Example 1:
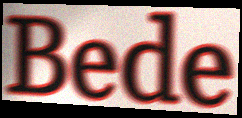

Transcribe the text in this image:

Bede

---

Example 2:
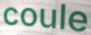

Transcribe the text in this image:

coule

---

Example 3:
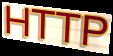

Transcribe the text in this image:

HTTP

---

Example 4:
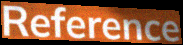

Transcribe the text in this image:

Reference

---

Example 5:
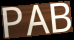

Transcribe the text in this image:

PAB